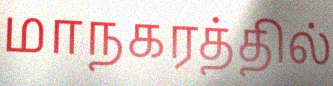
மாநகரத்தில்